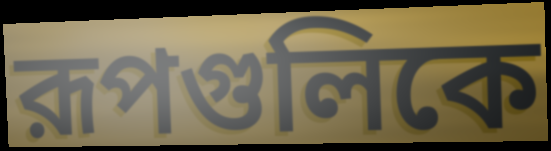
রূপগুলিকে